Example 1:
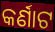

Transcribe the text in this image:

କର୍ଣାଟ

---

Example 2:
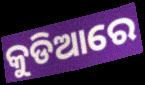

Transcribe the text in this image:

କୁଡିଆରେ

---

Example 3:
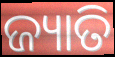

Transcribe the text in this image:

ଜ୍ୟାତି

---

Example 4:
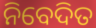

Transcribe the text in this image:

ନିବେଦିତ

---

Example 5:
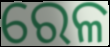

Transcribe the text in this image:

ରେଳ